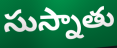
సుస్నాతు